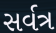
સર્વત્ર